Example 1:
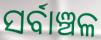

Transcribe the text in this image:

ସର୍ବାଞ୍ଚଳ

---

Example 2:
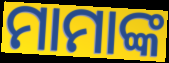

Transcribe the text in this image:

ମାମାଙ୍କ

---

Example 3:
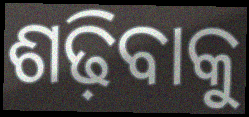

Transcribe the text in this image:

ଶଢ଼ିବାକୁ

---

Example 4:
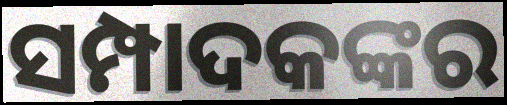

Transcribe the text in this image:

ସମ୍ପାଦକଙ୍କର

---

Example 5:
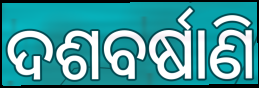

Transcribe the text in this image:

ଦଶବର୍ଷାଣି